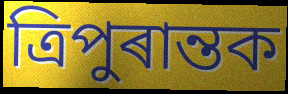
ত্ৰিপুৰান্তক